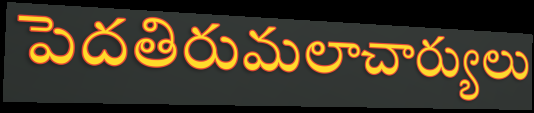
పెదతిరుమలాచార్యులు